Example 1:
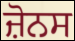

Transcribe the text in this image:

ਜ਼ੋਨਸ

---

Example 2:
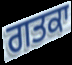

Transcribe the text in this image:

ਗਤਕਾ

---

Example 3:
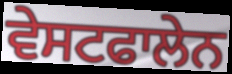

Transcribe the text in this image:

ਵੇਸਟਫਾਲੇਨ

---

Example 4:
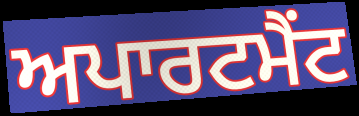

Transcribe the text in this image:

ਅਪਾਰਟਮੈਂਟ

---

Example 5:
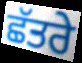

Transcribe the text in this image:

ਛੱਤਰੇ